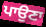
ਪਾਉਣਾ